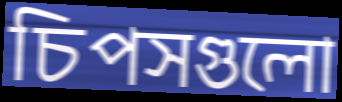
চিপসগুলো